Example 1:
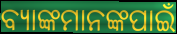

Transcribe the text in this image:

ବ୍ୟାଙ୍କମାନଙ୍କପାଇଁ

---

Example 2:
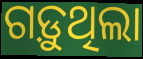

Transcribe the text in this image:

ଗଡ଼ୁଥିଲା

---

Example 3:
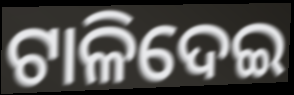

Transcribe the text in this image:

ଟାଳିଦେଇ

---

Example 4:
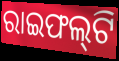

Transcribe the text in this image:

ରାଇଫଲ୍‍ଟି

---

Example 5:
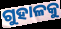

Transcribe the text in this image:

ଗୁହାଳକୁ